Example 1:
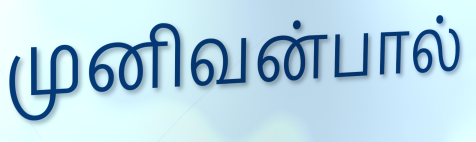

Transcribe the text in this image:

முனிவன்பால்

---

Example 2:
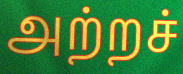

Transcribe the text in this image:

அற்றச்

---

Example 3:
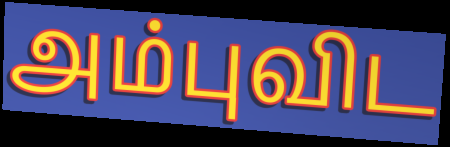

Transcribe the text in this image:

அம்புவிட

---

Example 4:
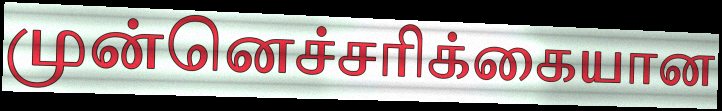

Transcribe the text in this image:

முன்னெச்சரிக்கையான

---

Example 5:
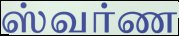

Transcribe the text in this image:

ஸ்வர்ண